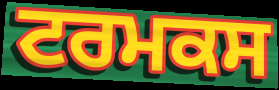
ਟਰਮਕਸ